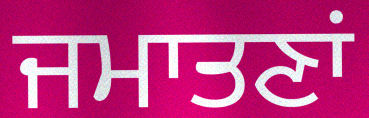
ਜਮਾਤਣਾਂ